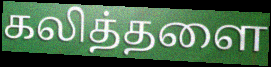
கலித்தளை